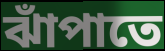
ঝাঁপাতে